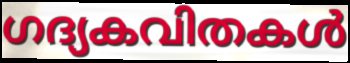
ഗദ്യകവിതകൾ